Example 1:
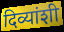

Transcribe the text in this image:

दिव्यांशी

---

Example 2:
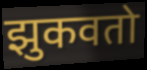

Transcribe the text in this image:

झुकवतो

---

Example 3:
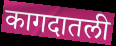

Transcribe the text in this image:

कागदातली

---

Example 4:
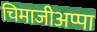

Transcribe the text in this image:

चिमाजीअप्पा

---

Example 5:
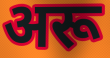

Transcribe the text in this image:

अरू